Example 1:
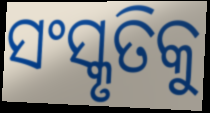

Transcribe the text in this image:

ସଂସ୍କୃତିକୁ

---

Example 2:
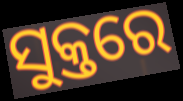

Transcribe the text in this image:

ସୁକ୍ତରେ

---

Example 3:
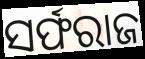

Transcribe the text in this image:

ସର୍ଫରାଜ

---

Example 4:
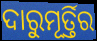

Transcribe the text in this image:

ଦାରୁମୂର୍ତ୍ତିର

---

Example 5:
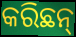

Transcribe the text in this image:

କରିଛନ୍